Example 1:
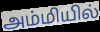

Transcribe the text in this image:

அம்மியில்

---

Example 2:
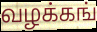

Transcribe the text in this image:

வழக்கங்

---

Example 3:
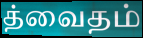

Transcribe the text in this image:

த்வைதம்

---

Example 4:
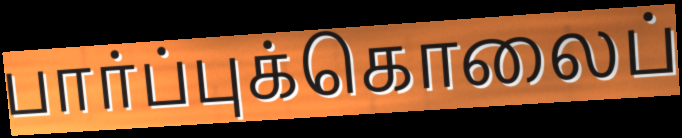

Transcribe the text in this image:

பார்ப்புக்கொலைப்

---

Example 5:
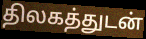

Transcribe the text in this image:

திலகத்துடன்